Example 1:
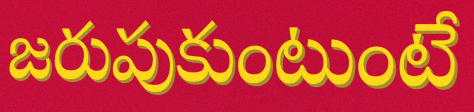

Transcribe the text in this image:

జరుపుకుంటుంటే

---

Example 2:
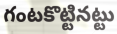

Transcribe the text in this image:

గంటకొట్టినట్టు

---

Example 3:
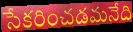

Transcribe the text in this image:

సేకరించడమనేది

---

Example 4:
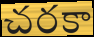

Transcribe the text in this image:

చరకా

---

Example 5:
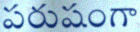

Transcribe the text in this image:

పరుషంగా